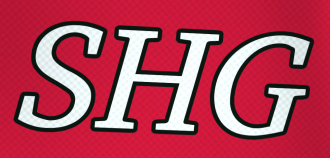
SHG